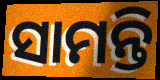
ସାମନ୍ତି